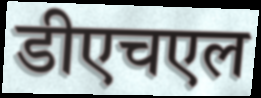
डीएचएल